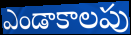
ఎండాకాలపు